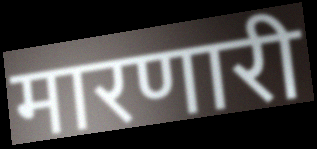
मारणारी